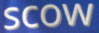
scow